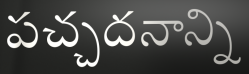
పచ్చదనాన్ని